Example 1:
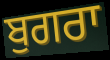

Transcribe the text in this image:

ਬੁਗਰਾ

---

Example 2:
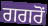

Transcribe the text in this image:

ਗਗਰੋਂ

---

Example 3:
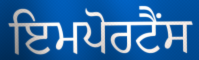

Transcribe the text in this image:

ਇਮਪੋਰਟੈਂਸ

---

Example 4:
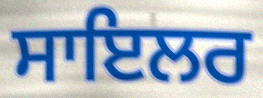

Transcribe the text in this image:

ਸਾਇਲਰ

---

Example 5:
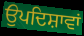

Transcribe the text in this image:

ਉਪਦਿਸ਼ਾਵਾਂ